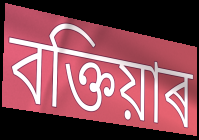
বক্তিয়াৰ